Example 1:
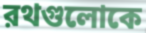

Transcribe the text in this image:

রথগুলোকে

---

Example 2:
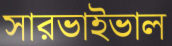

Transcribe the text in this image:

সারভাইভাল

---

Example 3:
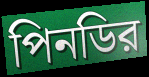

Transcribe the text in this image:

পিনডির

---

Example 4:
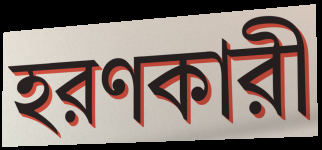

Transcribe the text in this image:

হরণকারী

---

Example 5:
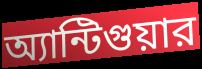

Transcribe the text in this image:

অ্যান্টিগুয়ার